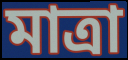
মাত্রা